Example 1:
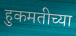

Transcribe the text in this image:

हुकमतीच्या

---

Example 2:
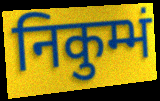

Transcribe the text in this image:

निकुम्भं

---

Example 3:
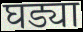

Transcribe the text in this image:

घड्या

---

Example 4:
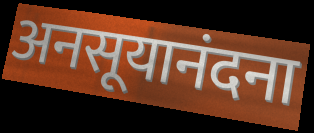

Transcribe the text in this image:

अनसूयानंदना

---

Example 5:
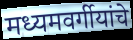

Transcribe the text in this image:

मध्यमवर्गीयांचे